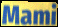
Mami